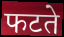
फटते